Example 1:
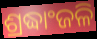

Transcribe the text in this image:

ଶ୍ରଦ୍ଧାଂଜଳି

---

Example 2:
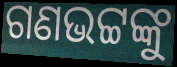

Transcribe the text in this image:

ଗଣଭଟ୍ଟଙ୍କୁ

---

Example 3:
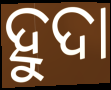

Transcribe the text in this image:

ହୁଦା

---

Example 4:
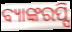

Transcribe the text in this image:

ବ୍ୟାଙ୍କରପ୍ସି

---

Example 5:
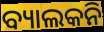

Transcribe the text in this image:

ବ୍ୟାଲକନି